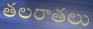
తలరాతలు